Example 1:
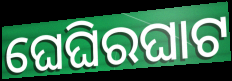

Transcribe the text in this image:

ଘେଘିରଘାଟ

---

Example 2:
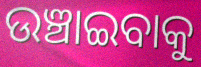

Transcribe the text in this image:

ଉଞ୍ଚାଇବାକୁ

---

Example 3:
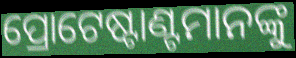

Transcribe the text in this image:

ପ୍ରୋଟେଷ୍ଟାଣ୍ଟମାନଙ୍କୁ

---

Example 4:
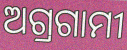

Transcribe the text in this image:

ଅଗ୍ରଗାମୀ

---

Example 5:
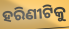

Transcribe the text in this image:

ହରିଣୀଟିକୁ